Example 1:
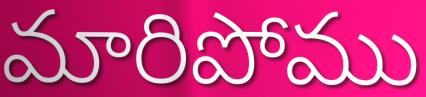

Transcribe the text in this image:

మారిపోము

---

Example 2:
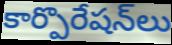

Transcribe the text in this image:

కార్పొరేషన్‌లు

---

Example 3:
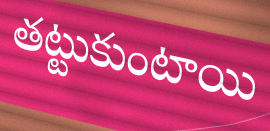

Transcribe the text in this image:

తట్టుకుంటాయి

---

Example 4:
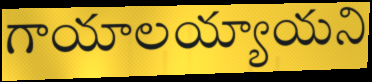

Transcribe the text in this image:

గాయాలయ్యాయని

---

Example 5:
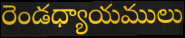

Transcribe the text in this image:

రెండధ్యాయములు